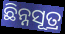
ଛିନ୍ନସୂତ୍ର